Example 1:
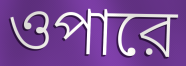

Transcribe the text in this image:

ওপারে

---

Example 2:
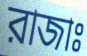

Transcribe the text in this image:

রাজাঃ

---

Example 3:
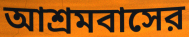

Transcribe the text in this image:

আশ্রমবাসের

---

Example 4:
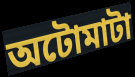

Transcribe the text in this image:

অটোমাটা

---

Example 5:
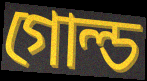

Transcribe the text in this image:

গোল্ড